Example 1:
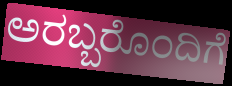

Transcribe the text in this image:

ಅರಬ್ಬರೊಂದಿಗೆ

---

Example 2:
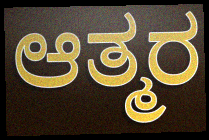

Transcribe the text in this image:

ಆತ್ಮರ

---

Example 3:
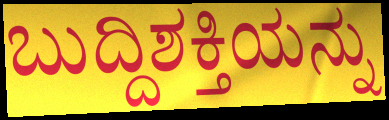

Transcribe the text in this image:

ಬುದ್ದಿಶಕ್ತಿಯನ್ನು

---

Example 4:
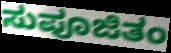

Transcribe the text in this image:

ಸುಪೂಜಿತಂ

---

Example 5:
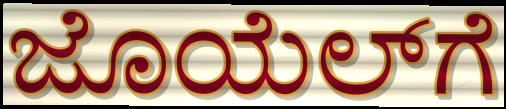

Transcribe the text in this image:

ಜೊಯೆಲ್‌ಗೆ